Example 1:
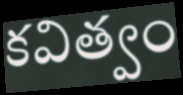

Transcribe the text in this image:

కవిత్వం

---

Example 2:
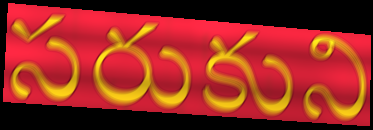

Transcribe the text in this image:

సరుకుని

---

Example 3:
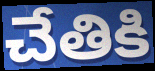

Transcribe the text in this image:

చేతికి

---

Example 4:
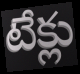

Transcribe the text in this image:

టేక్లు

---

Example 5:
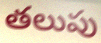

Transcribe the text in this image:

తలుపు